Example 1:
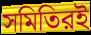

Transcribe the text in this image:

সমিতিরই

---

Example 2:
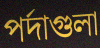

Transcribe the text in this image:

পর্দাগুলা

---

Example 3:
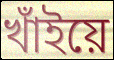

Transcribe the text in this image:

খাঁইয়ে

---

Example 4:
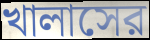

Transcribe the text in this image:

খালাসের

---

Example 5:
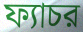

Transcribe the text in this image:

ফ্যাচর